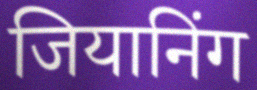
जियानिंग